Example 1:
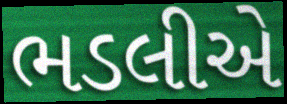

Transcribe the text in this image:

ભડલીએ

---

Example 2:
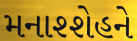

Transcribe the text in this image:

મનાશ્શેહને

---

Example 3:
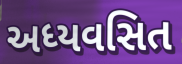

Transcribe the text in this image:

અધ્યવસિત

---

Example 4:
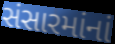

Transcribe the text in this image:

સંસારમાંનાં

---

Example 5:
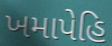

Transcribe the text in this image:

ખમાપેહિ